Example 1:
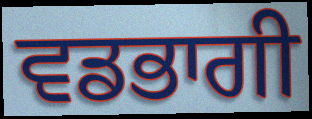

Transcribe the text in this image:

ਵਡਭਾਗੀ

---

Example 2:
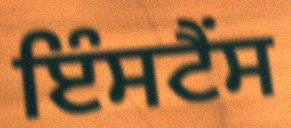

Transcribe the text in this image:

ਇੰਸਟੈਂਸ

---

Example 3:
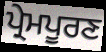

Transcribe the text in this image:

ਪ੍ਰੇਮਪੂਰਣ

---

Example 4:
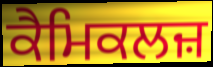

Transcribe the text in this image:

ਕੈਮਿਕਲਜ਼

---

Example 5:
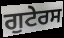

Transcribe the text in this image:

ਗੁਟੇਰਸ